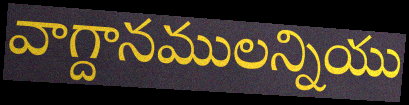
వాగ్దానములన్నియు